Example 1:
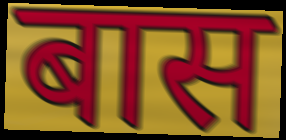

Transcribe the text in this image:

बास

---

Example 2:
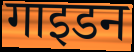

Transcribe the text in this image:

गाइडन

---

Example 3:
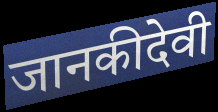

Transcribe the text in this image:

जानकीदेवी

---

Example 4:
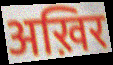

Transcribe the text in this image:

अख़िर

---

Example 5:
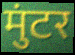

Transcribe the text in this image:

मुंटर